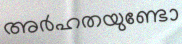
അർഹതയുണ്ടോ